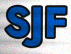
SJF